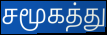
சமூகத்து